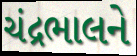
ચંદ્રભાલને